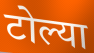
टोल्या